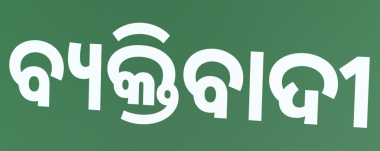
ବ୍ୟକ୍ତିବାଦୀ